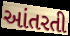
આંતરતી